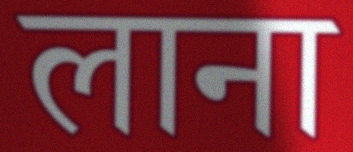
लाना